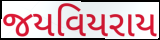
જયવિયરાય